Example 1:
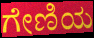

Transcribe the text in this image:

ಗೇಣಿಯ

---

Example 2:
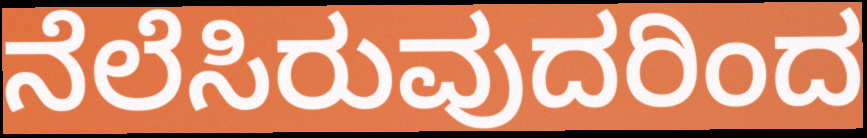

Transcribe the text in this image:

ನೆಲೆಸಿರುವುದರಿಂದ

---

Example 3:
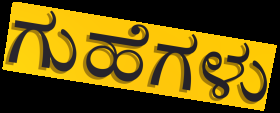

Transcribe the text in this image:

ಗುಹೆಗಳು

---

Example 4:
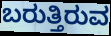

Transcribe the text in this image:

ಬರುತ್ತಿರುವ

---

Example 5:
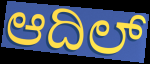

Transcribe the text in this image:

ಆದಿಲ್